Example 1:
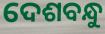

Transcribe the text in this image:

ଦେଶବନ୍ଧୁ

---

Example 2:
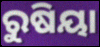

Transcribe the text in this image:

ରୁଷିୟା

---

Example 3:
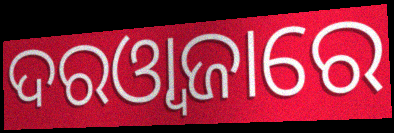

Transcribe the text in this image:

ଦରଓ୍ୱାଜାରେ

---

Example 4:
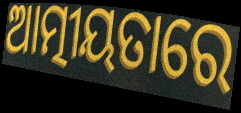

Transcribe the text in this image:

ଆତ୍ମୀୟତାରେ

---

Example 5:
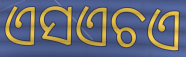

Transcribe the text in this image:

ଏସଏଚଏ